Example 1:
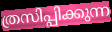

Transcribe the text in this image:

ത്രസിപ്പിക്കുന്ന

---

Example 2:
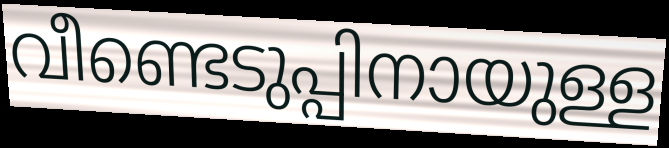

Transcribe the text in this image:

വീണ്ടെടുപ്പിനായുള്ള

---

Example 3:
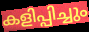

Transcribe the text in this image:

കളിപ്പിച്ചും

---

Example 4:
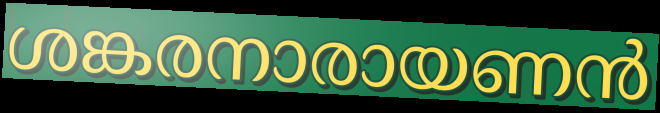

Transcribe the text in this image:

ശങ്കരനാരായണൻ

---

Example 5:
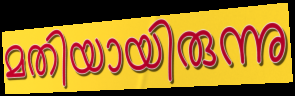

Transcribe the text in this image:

മതിയായിരുന്നു